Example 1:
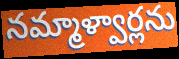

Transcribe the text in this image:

నమ్మాళ్వార్లను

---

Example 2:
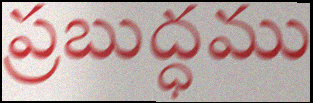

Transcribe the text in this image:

ప్రబుద్ధము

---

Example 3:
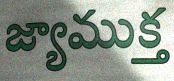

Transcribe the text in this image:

జ్యాముక్త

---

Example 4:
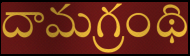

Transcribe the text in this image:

దామగ్రంథి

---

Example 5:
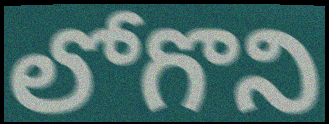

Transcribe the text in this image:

లోగొని